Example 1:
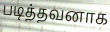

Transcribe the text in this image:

படித்தவனாக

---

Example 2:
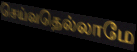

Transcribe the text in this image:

செய்வதெல்லாமே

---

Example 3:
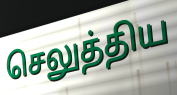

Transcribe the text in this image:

செலுத்திய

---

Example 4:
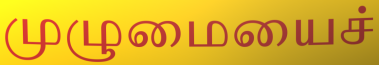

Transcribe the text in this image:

முழுமையைச்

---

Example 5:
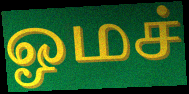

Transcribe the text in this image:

ஓமச்